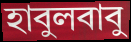
হাবুলবাবু